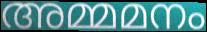
അമ്മമനം